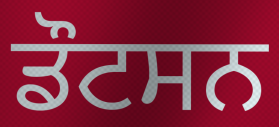
ਡੌਟਸਨ